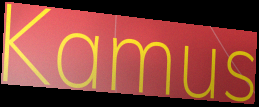
Kamus